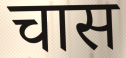
चास